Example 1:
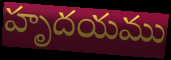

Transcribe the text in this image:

హృదయము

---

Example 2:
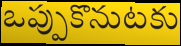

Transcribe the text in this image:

ఒప్పుకొనుటకు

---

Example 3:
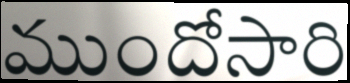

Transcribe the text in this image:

ముందోసారి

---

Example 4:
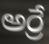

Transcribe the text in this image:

అర్రే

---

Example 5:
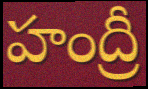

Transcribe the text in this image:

హంద్రీ